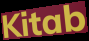
Kitab